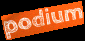
podium